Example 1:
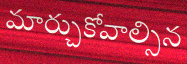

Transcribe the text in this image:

మార్చుకోవాల్సిన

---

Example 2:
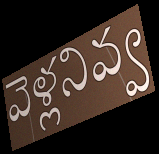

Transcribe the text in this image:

వెళ్లనివ్వ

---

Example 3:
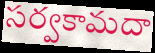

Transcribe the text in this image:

సర్వకామదా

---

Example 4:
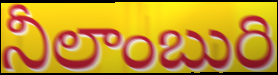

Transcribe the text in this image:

నీలాంబురి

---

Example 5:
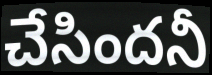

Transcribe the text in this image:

చేసిందనీ